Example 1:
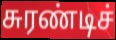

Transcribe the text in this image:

சுரண்டிச்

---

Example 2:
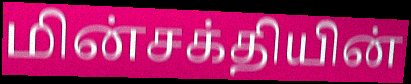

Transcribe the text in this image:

மின்சக்தியின்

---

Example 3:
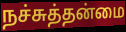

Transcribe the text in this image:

நச்சுத்தன்மை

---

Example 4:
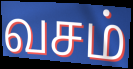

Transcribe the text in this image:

வசம்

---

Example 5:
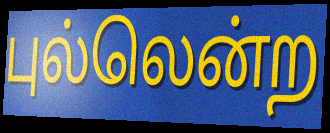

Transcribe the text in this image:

புல்லென்ற